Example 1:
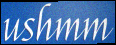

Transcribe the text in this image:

ushmm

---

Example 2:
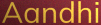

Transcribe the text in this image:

Aandhi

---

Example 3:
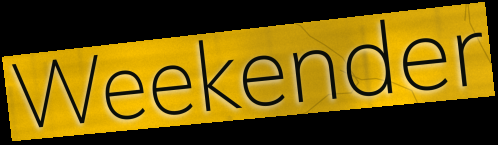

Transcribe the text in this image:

Weekender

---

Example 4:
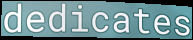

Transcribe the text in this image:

dedicates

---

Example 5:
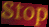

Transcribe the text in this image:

Stop